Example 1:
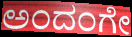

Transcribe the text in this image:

ಅಂದಂಗೇ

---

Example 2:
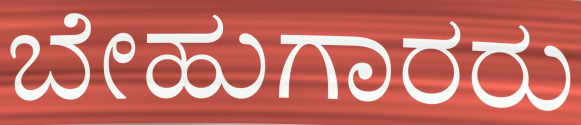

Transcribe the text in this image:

ಬೇಹುಗಾರರು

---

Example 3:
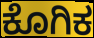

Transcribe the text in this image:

ಕೊಗಿಕ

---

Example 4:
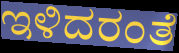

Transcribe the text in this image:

ಇಳಿದರಂತೆ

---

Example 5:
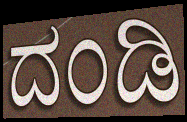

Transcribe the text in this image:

ದಂಡಿ